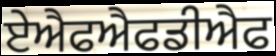
ਏਐਫਐਫਡੀਐਫ